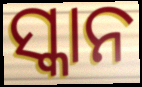
ସ୍କାନ